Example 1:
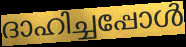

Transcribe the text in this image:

ദാഹിച്ചപ്പോൾ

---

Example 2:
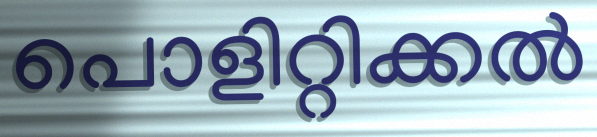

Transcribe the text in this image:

പൊളിറ്റിക്കൽ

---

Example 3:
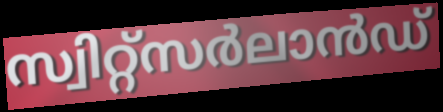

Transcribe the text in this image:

സ്വിറ്റ്സർലാൻഡ്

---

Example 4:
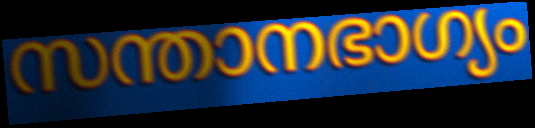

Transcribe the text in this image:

സന്താനഭാഗ്യം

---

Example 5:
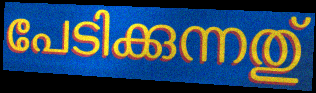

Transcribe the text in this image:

പേടിക്കുന്നതു്